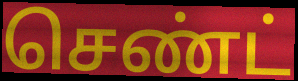
செண்ட்